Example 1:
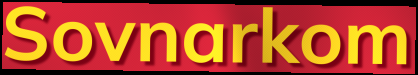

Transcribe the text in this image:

Sovnarkom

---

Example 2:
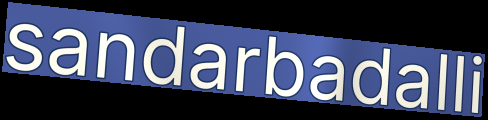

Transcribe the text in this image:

sandarbadalli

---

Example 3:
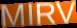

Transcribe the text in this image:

MIRV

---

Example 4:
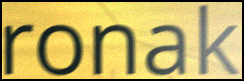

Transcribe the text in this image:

ronak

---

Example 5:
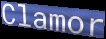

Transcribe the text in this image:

Clamor